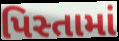
પિસ્તામાં